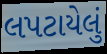
લપટાયેલું